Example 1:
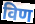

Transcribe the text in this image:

विण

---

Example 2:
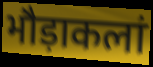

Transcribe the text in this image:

भौड़ाकलां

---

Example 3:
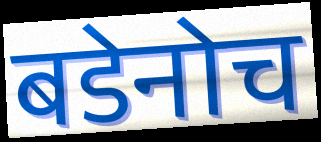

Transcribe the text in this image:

बडेनोच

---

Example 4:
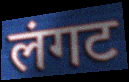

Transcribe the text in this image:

लंगट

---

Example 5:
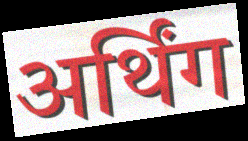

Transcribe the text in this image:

अर्थिंग